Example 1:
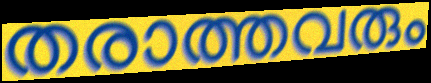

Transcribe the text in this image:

തരാത്തവരും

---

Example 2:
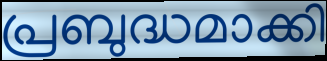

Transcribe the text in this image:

പ്രബുദ്ധമാക്കി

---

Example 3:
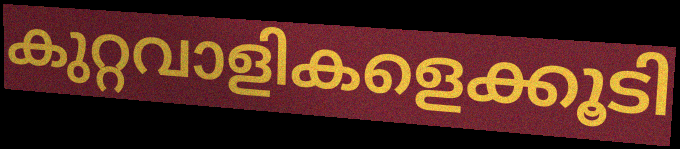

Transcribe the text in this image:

കുറ്റവാളികളെക്കൂടി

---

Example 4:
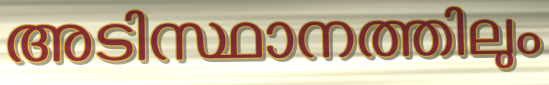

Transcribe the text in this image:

അടിസ്ഥാനത്തിലും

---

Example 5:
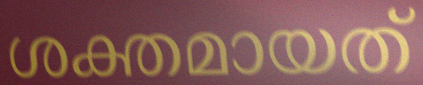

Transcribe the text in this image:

ശക്തമായത്